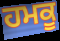
ਹਮਕੂ